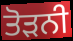
ਤੋੜਨੀ